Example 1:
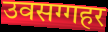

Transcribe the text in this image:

उवसग्गहर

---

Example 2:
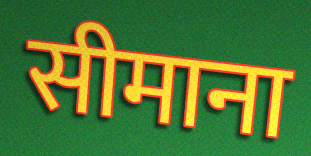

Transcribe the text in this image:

सीमाना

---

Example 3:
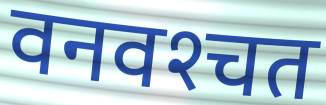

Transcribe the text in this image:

वनवश्चत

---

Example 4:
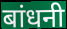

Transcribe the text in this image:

बांधनी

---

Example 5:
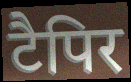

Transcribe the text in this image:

टैपिर